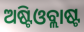
ଅଷ୍ଟିଓବ୍ଲାଷ୍ଟ